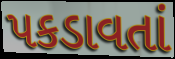
પકડાવતાં